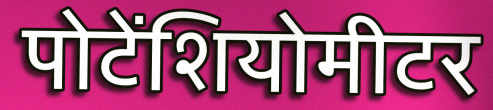
पोटेंशियोमीटर